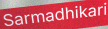
Sarmadhikari